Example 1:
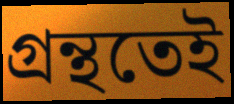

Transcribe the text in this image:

গ্ৰন্থতেই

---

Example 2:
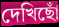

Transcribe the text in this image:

দেখিছোঁ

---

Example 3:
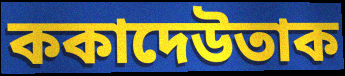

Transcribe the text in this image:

ককাদেউতাক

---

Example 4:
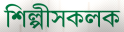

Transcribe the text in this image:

শিল্পীসকলক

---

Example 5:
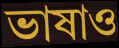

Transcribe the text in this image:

ভাষাও